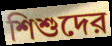
শিশুদের